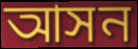
আসন